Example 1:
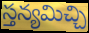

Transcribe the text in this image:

స్తన్యమిచ్చి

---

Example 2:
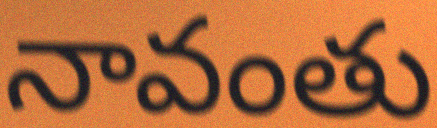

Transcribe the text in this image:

నావంతు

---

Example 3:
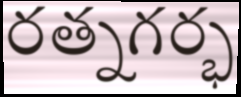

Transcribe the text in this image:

రత్నగర్భ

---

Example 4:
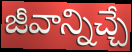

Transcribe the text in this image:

జీవాన్నిచ్చే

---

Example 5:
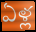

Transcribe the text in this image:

ఏళ్ల